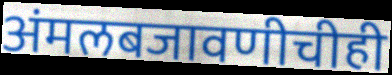
अंमलबजावणीचीही